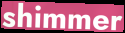
shimmer